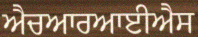
ਐਚਆਰਆਈਐਸ